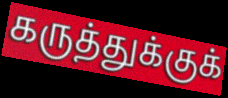
கருத்துக்குக்